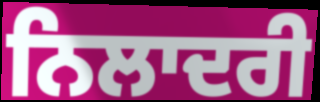
ਨਿਲਾਦਰੀ